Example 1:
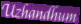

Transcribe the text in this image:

Uzhandhum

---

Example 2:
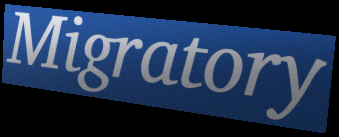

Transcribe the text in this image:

Migratory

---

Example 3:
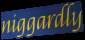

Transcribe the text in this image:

niggardly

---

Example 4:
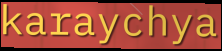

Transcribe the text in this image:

karaychya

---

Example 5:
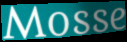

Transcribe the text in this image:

Mosse